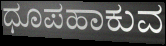
ಧೂಪಹಾಕುವ